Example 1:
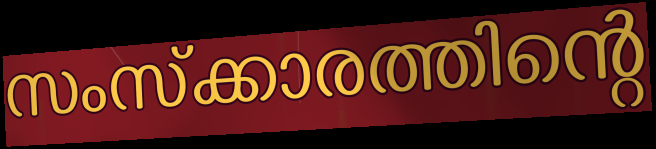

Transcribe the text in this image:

സംസ്‌ക്കാരത്തിന്റെ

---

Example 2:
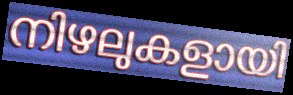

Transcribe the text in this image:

നിഴലുകളായി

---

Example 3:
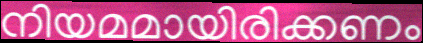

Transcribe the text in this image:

നിയമമായിരിക്കണം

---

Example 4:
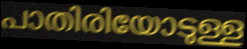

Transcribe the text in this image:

പാതിരിയോടുള്ള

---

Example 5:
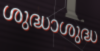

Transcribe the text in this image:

ശുദ്ധാശുദ്ധ